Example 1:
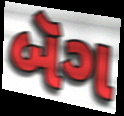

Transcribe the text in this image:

બૅગ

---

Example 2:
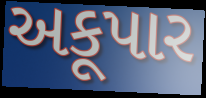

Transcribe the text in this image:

અકૂપાર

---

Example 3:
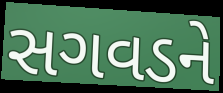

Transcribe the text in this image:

સગવડને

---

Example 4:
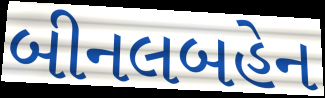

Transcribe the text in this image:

બીનલબહેન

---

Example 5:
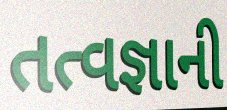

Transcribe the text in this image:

તત્વજ્ઞાની